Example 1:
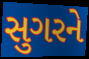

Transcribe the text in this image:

સુગરને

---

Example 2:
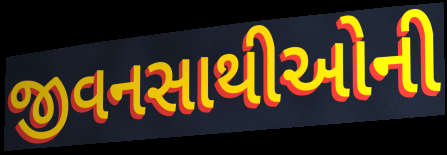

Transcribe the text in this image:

જીવનસાથીઓની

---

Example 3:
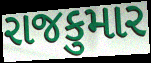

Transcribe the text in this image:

રાજકુમાર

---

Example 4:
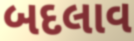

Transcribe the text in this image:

બદલાવ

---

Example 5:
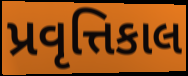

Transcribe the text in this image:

પ્રવૃત્તિકાલ